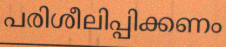
പരിശീലിപ്പിക്കണം